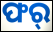
ଫର୍